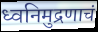
ध्वनिमुद्रणाचं